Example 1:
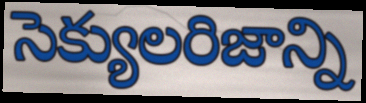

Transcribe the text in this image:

సెక్యులరిజాన్ని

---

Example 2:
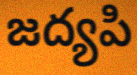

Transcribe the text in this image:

జద్యపి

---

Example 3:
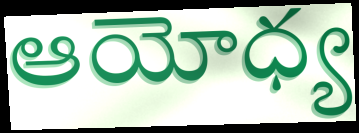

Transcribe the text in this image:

ఆయోధ్య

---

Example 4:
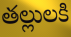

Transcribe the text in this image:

తల్లులకి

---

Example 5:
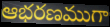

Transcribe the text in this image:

ఆభరణముగా